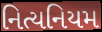
નિત્યનિયમ